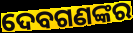
ଦେବଗଣଙ୍କର